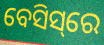
ବେସିସ୍‌ରେ